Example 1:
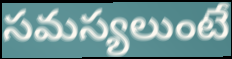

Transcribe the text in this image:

సమస్యలుంటే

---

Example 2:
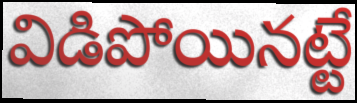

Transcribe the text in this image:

విడిపోయినట్టే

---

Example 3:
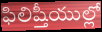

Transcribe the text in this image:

ఫిలిష్తీయుల్లో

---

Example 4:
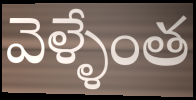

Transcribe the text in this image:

వెళ్ళేంత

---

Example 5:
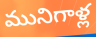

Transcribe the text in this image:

మునిగాళ్ల